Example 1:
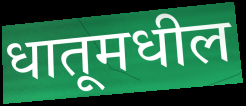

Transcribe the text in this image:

धातूमधील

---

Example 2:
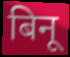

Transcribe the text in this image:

बिनू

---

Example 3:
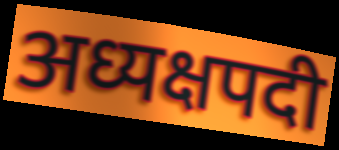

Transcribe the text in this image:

अध्यक्षपदी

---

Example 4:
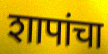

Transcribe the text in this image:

शापांचा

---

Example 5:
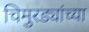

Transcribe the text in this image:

चिमुरड्यांच्या